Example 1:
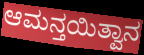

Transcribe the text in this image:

ಆಮನ್ತಯಿತ್ವಾನ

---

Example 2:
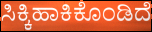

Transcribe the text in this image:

ಸಿಕ್ಕಿಹಾಕಿಕೊಂಡಿದೆ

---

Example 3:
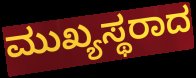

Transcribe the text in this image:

ಮುಖ್ಯಸ್ಥರಾದ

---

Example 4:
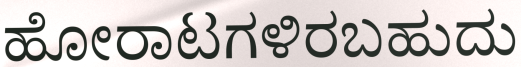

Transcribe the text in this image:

ಹೋರಾಟಗಳಿರಬಹುದು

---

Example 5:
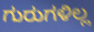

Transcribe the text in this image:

ಗುರುಗಳಿಲ್ಲ